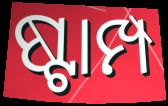
ଷ୍ଟାମ୍ପ